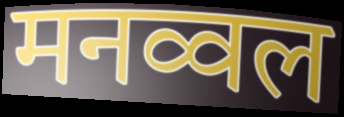
मनव्वल